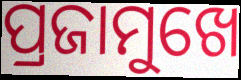
ପ୍ରଜାମୁଖେ